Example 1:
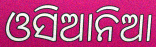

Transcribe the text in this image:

ଓସିଆନିଆ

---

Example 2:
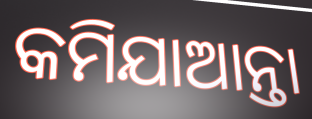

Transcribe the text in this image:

କମିଯାଆନ୍ତା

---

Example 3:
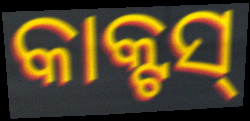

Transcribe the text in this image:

କାକ୍ଟସ୍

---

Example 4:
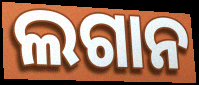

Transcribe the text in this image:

ଲଗାନ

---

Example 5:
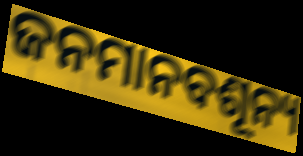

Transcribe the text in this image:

ଜନମାନବଶୂନ୍ୟ